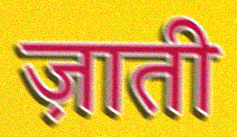
ज़ाती